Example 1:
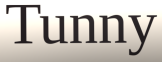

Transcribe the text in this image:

Tunny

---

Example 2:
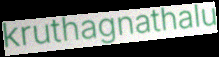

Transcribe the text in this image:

kruthagnathalu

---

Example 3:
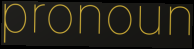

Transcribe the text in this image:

pronoun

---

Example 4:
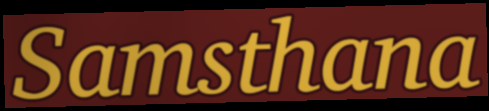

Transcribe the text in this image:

Samsthana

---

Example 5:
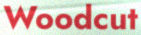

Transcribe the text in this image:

Woodcut